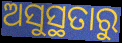
ଅସୁସ୍ଥତାରୁ